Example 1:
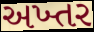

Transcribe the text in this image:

અખ્તર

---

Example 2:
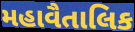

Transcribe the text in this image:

મહાવૈતાલિક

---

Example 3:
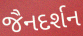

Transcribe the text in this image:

જૈનદર્શન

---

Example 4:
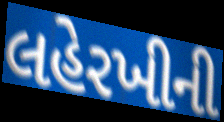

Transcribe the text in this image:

લહેરખીની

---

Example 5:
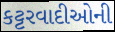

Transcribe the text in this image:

કટ્ટરવાદીઓની